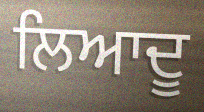
ਲਿਆਦੂ